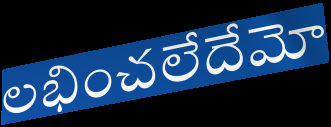
లభించలేదేమో